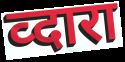
व्दारा